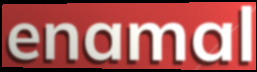
enamal